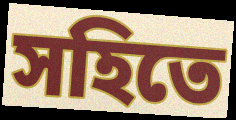
সহিতে